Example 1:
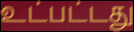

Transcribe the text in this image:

உட்பட்டது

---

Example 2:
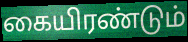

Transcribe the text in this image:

கையிரண்டும்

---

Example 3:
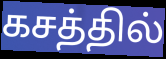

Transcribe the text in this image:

கசத்தில்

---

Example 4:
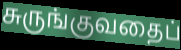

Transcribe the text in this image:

சுருங்குவதைப்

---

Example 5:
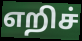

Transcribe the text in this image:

எறிச்